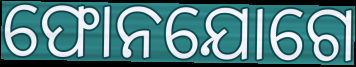
ଫୋନଯୋଗେ